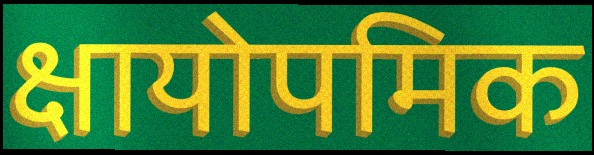
क्षायोपमिक